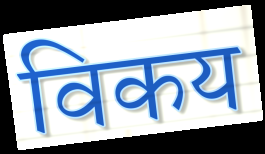
विकय